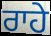
ਰਾਹੇ